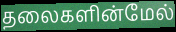
தலைகளின்மேல்